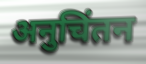
अनुचिंतन